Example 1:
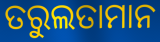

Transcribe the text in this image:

ତରୁଲତାମାନ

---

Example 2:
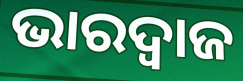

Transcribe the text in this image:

ଭାରଦ୍ୱାଜ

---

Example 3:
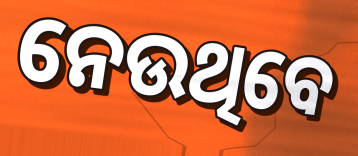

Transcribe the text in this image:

ନେଉଥିବେ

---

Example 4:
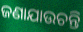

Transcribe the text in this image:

ଜଣାଯାଉଚନ୍ତି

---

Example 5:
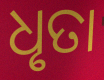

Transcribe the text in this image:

ଧୃତା